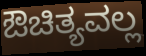
ಔಚಿತ್ಯವಲ್ಲ